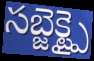
సబ్జెక్ట్పై